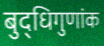
बुद्धिगुणांक